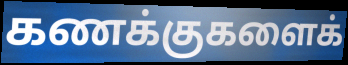
கணக்குகளைக்